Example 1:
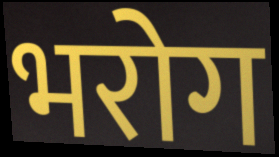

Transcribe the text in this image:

भरोग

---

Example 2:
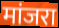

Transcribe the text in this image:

मांजरा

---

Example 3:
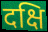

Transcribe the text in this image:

दक्षि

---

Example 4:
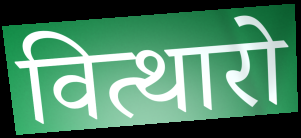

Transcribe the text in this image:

वित्थारो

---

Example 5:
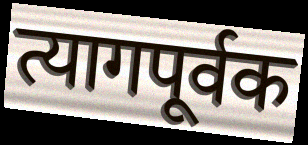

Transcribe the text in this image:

त्यागपूर्वक